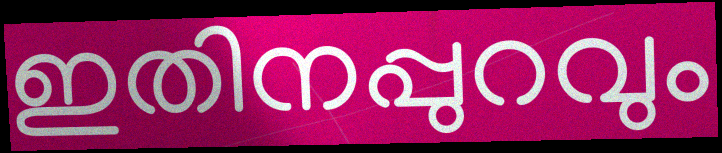
ഇതിനപ്പുറവും